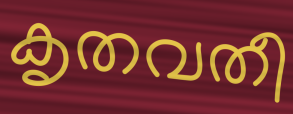
കൃതവതീ